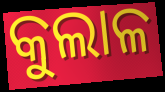
କୁଲାଳ